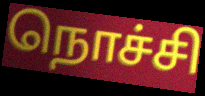
நொச்சி